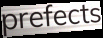
prefects